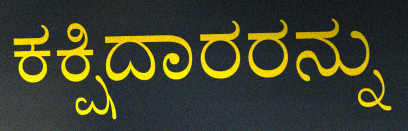
ಕಕ್ಷಿದಾರರನ್ನು